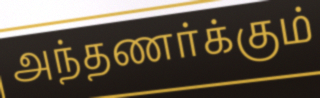
அந்தணர்க்கும்